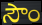
సౌం